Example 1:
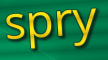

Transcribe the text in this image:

spry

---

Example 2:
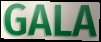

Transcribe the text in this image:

GALA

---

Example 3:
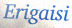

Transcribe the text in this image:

Erigaisi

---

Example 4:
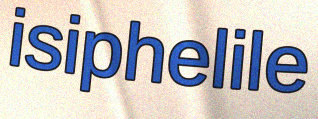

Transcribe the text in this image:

isiphelile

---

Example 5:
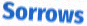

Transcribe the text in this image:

Sorrows